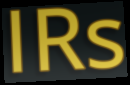
IRs